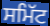
ਸਮਿੱਟ